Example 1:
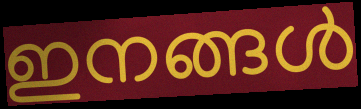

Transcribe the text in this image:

ഇനങ്ങൾ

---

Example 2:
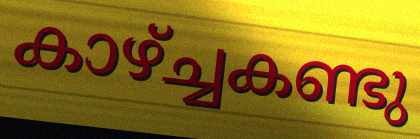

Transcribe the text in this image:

കാഴ്ച്ചകണ്ടു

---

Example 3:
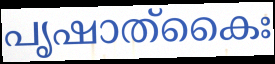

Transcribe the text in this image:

പൃഷാത്കൈഃ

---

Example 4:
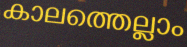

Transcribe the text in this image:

കാലത്തെല്ലാം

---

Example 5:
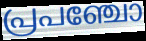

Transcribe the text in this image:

പ്രപഞ്ചോ